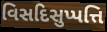
વિસદિસુપ્પત્તિ